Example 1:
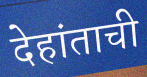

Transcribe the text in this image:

देहांताची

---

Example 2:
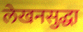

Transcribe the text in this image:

लेखनसुद्धा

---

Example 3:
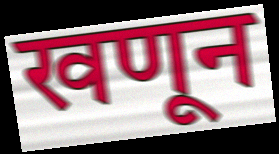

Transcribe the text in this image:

खणून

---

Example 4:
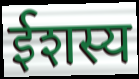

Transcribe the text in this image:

ईशस्य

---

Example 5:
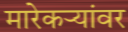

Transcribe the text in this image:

मारेकऱ्यांवर